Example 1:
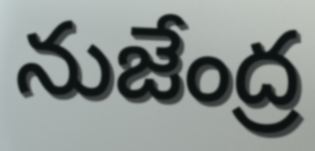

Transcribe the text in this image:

నుజేంద్ర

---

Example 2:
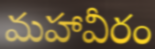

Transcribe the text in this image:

మహావీరం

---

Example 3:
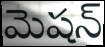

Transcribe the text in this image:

మెషన్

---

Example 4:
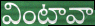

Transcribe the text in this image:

వింటావా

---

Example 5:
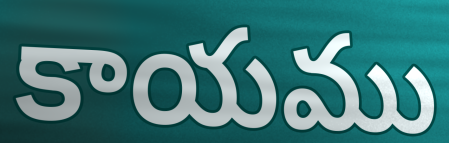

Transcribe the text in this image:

కాయము